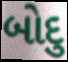
બોદુ